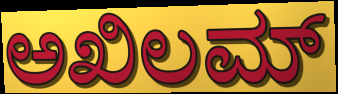
ಅಖಿಲಮ್